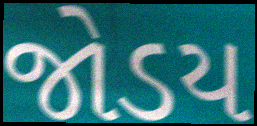
જોડય